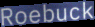
Roebuck